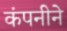
कंपनीने